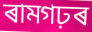
ৰামগঢ়ৰ